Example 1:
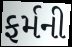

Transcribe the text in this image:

ફર્મની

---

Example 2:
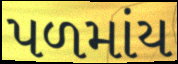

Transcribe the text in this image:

પળમાંય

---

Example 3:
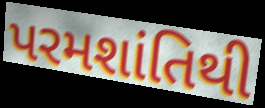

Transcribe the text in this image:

પરમશાંતિથી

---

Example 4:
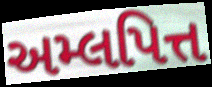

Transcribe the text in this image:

અમ્લપિત્ત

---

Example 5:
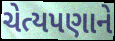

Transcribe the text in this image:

ચેત્યપણાને